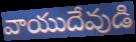
వాయుదేవుడి